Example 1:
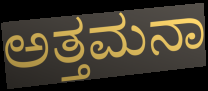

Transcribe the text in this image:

ಅತ್ತಮನಾ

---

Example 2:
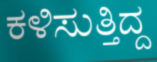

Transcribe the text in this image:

ಕಳಿಸುತ್ತಿದ್ದ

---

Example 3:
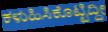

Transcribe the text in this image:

ಕಳುಹಿಸಿಕೊಟ್ಟಿದ್ದೀ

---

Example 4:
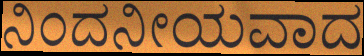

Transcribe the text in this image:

ನಿಂದನೀಯವಾದ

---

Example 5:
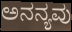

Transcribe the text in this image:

ಅನನ್ಯವು